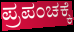
ಪ್ರಪಂಚಕ್ಕೆ